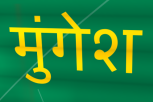
मुंगेश